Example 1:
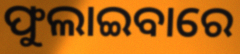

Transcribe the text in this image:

ଫୁଲାଇବାରେ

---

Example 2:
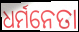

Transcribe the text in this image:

ଧର୍ମନେତା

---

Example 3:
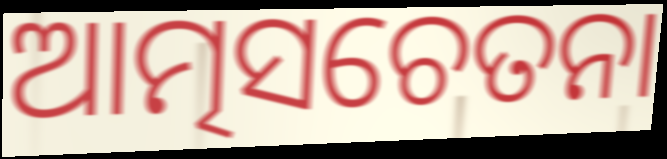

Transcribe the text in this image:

ଆତ୍ମସଚେତନା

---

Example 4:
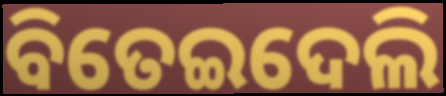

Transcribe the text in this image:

ବିତେଇଦେଲି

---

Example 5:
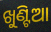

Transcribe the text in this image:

ଖୁଣ୍ଟିଆ